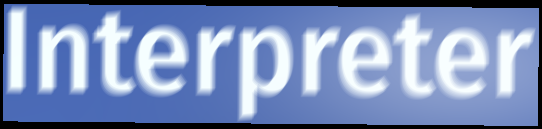
Interpreter